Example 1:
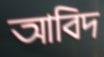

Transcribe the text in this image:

আবিদ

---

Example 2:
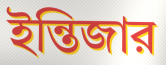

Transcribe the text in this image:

ইন্তিজার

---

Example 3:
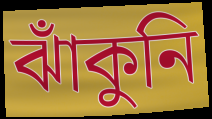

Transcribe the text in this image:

ঝাঁকুনি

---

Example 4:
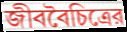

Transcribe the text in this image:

জীববৈচিত্রের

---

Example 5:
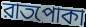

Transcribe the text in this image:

রাতপোকা